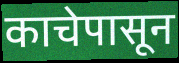
काचेपासून